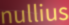
nullius